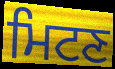
ਮਿਟਣ